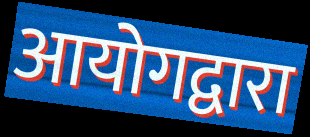
आयोगद्वारा